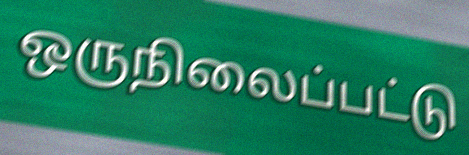
ஒருநிலைப்பட்டு